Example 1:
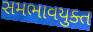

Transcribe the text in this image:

સમભાવયુક્ત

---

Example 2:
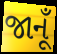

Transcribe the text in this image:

જાનૂઁ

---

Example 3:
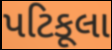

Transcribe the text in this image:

પટિકૂલા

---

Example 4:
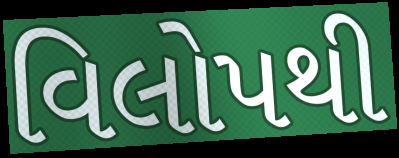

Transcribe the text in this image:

વિલોપથી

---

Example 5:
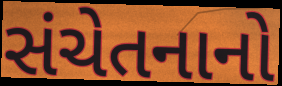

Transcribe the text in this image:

સંચેતનાનો